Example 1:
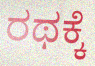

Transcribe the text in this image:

ರಥಕ್ಕೆ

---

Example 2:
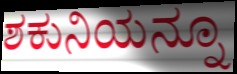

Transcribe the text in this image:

ಶಕುನಿಯನ್ನೂ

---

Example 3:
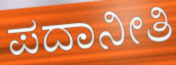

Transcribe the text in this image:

ಪದಾನೀತಿ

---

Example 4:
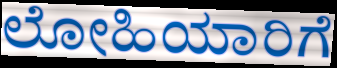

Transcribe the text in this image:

ಲೋಹಿಯಾರಿಗೆ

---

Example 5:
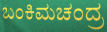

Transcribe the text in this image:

ಬಂಕಿಮಚಂದ್ರ